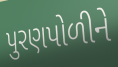
પુરણપોળીને